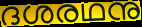
ദശരഥനു